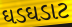
ઘડઘડાટ